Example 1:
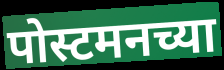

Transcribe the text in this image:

पोस्टमनच्या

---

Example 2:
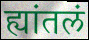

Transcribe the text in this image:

ह्यांतलं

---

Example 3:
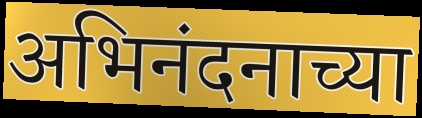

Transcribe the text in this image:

अभिनंदनाच्या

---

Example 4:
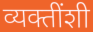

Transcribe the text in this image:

व्यक्तींशी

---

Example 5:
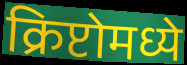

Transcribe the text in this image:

क्रिप्टोमध्ये